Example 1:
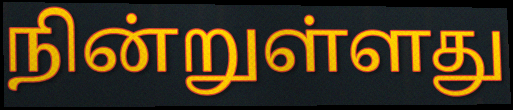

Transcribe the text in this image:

நின்றுள்ளது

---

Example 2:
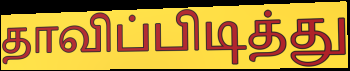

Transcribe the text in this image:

தாவிப்பிடித்து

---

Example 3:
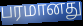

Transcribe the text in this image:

பரமானது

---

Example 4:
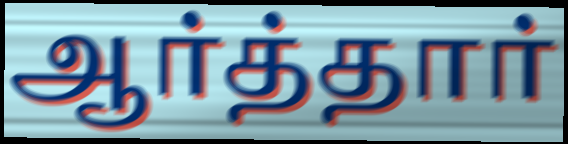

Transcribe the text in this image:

ஆர்த்தார்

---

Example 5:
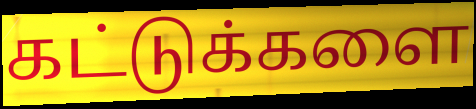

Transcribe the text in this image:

கட்டுக்களை